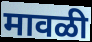
मावळी